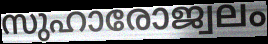
സുഹാരോജ്വലം